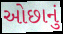
ઓછાનું